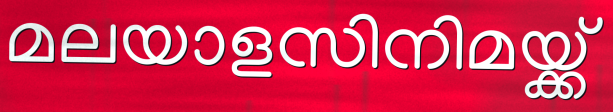
മലയാളസിനിമയ്ക്ക്